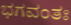
ಭಗವಂತಃ